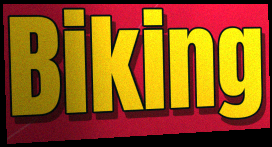
Biking